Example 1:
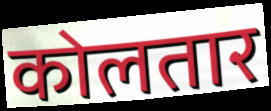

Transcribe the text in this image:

कोलतार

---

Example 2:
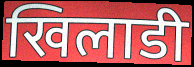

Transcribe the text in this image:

खिलाडी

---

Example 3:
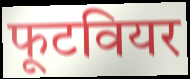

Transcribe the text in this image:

फूटवियर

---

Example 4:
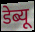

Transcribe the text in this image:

डेब्यू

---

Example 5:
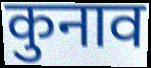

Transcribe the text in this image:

कुनाव